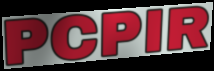
PCPIR